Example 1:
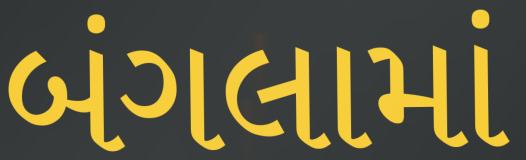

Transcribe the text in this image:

બંગલામાં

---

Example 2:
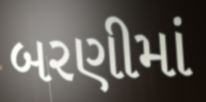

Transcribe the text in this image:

બરણીમાં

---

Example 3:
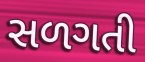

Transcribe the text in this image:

સળગતી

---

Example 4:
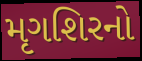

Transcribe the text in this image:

મૃગશિરનો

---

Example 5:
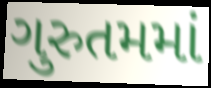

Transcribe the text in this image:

ગુરુતમમાં